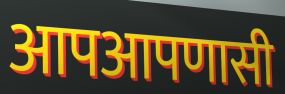
आपआपणासी